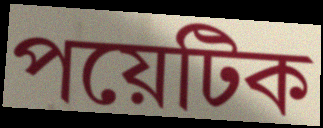
পয়েটিক